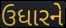
ઉધારને